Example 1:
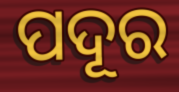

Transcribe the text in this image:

ପଦୂର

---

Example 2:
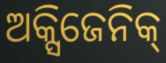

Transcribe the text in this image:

ଅକ୍ସିଜେନିକ୍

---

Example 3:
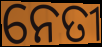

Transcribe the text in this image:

ନେତୀ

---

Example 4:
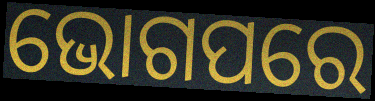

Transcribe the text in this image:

ଭୋଗପରେ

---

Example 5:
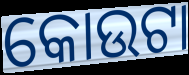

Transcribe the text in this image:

କୋଉଟା